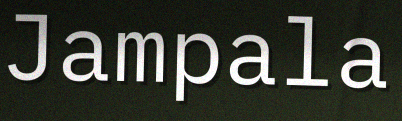
Jampala